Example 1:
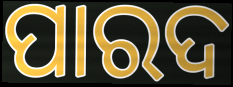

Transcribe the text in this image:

ପାରଦ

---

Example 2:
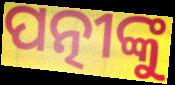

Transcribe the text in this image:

ପତ୍ନୀଙ୍କୁ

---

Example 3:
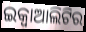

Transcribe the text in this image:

ଇକ୍ୱାଆଲିଟିର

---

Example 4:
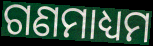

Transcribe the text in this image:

ଗଣମାଧ୍ୟମ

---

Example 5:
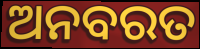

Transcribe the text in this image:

ଅନବରତ